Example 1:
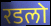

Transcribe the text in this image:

रडलो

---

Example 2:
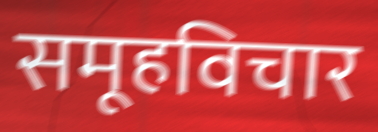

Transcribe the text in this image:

समूहविचार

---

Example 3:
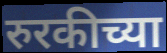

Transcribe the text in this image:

रुरकीच्या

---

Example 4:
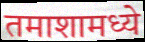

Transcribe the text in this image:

तमाशामध्ये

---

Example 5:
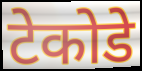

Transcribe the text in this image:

टेकोडे